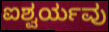
ಐಶ್ವರ್ಯವು